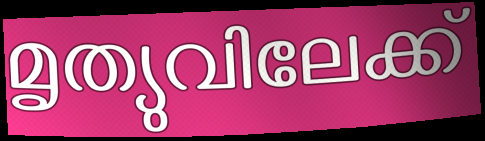
മൃത്യുവിലേക്ക്